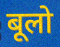
बूलो